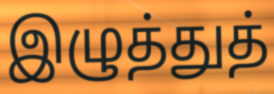
இழுத்துத்